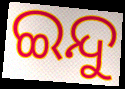
ଇନ୍ଦୁ